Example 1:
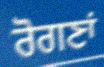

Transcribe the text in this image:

ਰੋਗਣਾਂ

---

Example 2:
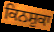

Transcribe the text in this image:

ਕਿਨਸ਼ੁਕਾ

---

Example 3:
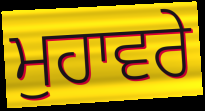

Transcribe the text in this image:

ਮੁਹਾਵਰੇ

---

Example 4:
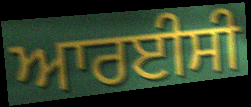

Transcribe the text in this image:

ਆਰਈਸੀ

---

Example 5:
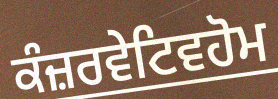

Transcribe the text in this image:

ਕੰਜ਼ਰਵੇਟਿਵਹੋਮ